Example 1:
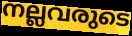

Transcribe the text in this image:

നല്ലവരുടെ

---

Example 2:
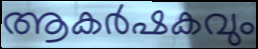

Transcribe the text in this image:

ആകർഷകവും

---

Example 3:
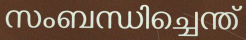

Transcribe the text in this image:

സംബന്ധിച്ചെന്ത്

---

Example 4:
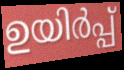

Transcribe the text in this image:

ഉയിർപ്പ്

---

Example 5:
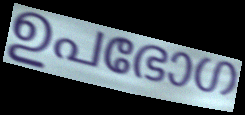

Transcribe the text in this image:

ഉപഭോഗ